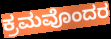
ಕ್ರಮವೊಂದರ